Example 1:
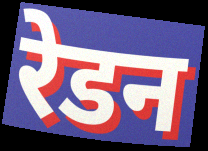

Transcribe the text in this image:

रेडन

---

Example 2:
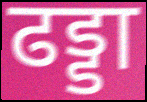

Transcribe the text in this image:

ढड्डा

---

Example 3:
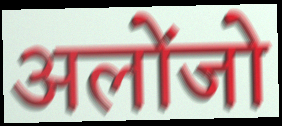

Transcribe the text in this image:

अलोंजो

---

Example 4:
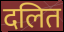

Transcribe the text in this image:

दलित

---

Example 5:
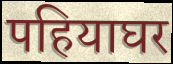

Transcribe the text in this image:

पहियाघर